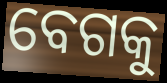
ବେଗକୁ